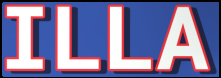
ILLA